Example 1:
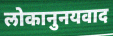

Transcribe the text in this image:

लोकानुनयवाद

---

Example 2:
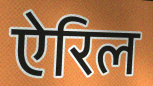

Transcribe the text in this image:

ऐरिल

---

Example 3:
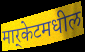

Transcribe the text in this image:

मार्केटमधील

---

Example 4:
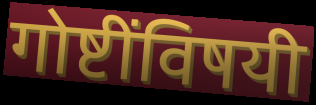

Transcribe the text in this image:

गोष्टींविषयी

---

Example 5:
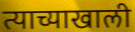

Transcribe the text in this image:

त्याच्याखाली